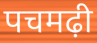
पचमढ़ी